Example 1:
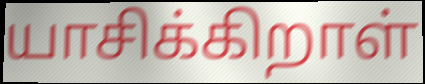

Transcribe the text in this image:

யாசிக்கிறாள்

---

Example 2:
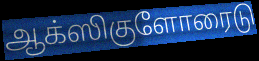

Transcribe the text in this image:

ஆக்ஸிகுளோரைடு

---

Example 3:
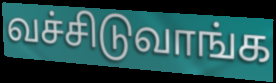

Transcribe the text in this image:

வச்சிடுவாங்க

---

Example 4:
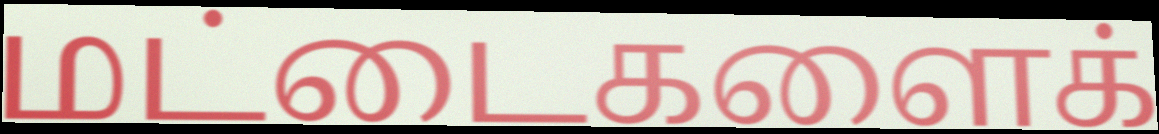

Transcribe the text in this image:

மட்டைகளைக்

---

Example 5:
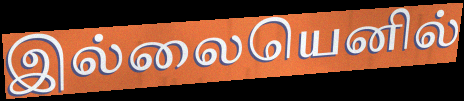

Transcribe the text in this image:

இல்லையெனில்